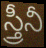
స్త్రీనీ